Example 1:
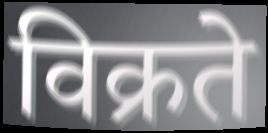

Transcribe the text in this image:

विक्रते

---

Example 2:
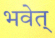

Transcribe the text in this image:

भवेत्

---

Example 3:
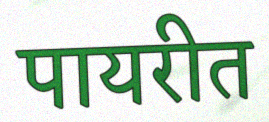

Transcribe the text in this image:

पायरीत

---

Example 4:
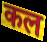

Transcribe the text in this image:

कल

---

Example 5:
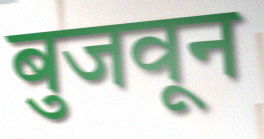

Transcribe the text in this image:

बुजवून